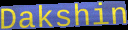
Dakshin